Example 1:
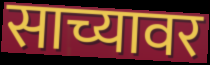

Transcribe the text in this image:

साच्यावर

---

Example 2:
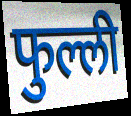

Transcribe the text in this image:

फुल्ली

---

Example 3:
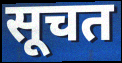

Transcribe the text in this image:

सूचत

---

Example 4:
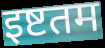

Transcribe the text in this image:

इष्टतम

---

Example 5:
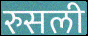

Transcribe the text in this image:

रुसली